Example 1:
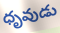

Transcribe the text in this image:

ధృవుడు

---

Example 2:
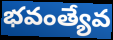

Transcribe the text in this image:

భవంత్యేవ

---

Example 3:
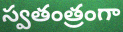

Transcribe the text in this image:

స్వతంత్రంగా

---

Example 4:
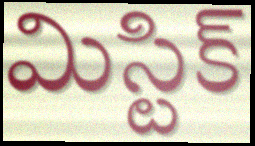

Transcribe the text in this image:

మిస్టిక్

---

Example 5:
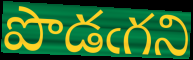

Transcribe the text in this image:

పొడఁగని